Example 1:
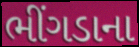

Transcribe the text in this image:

ભીંગડાના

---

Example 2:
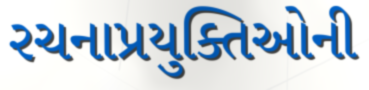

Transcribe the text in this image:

રચનાપ્રયુક્તિઓની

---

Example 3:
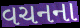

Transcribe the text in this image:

વચનના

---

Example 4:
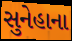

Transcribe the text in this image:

સુનેહાના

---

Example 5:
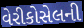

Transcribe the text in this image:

વેરીકોસેલની